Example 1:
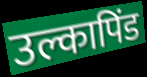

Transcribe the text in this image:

उल्कापिंड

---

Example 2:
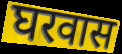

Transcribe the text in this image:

घरवास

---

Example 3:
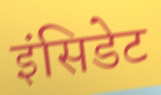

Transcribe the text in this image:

इंसिडेट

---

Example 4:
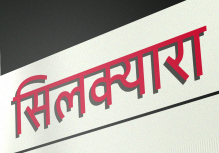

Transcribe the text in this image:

सिलक्यारा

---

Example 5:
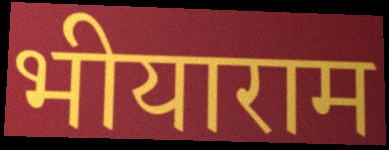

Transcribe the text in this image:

भीयाराम